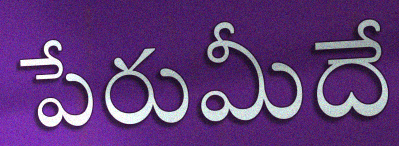
పేరుమీదే